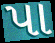
પા